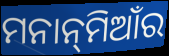
ମନାନ୍‌ମିଆଁର